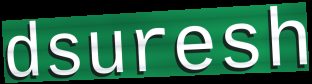
dsuresh